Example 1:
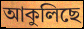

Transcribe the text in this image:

আকুলিছে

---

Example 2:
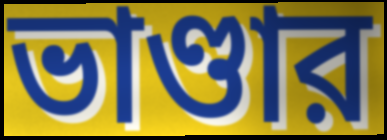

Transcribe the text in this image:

ভাণ্ডার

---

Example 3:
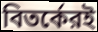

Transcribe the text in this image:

বিতর্কেরই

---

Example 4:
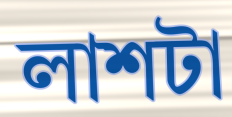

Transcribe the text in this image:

লাশটা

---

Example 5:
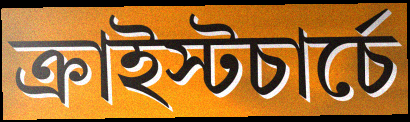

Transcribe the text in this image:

ক্রাইস্টচার্চে